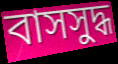
বাসসুদ্ধ